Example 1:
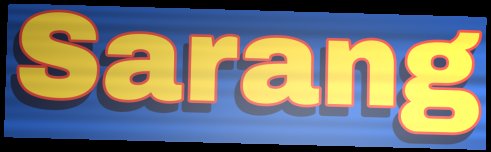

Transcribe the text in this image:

Sarang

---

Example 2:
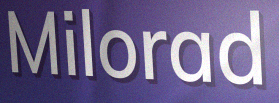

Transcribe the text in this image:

Milorad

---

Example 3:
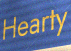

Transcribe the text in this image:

Hearty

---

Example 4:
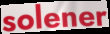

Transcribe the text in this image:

solener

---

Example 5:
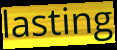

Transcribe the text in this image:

lasting